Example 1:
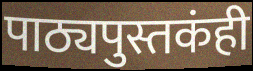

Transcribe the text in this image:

पाठ्यपुस्तकंही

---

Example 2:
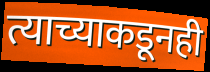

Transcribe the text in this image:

त्याच्याकडूनही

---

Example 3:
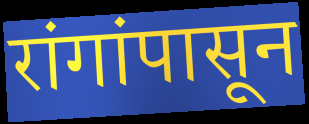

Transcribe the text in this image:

रांगांपासून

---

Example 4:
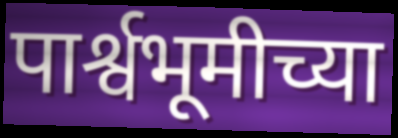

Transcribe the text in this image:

पार्श्वभूमीच्या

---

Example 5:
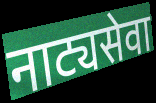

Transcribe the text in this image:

नाट्यसेवा